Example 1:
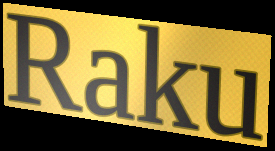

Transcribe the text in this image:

Raku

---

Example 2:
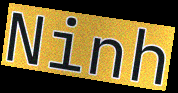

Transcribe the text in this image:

Ninh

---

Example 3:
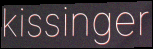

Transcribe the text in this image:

kissinger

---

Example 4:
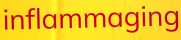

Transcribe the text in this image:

inflammaging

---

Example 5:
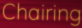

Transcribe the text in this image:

Chairing